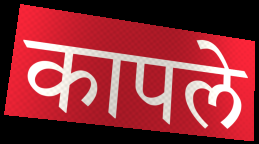
कापले